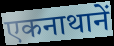
एकनाथानें